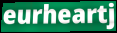
eurheartj